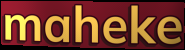
maheke